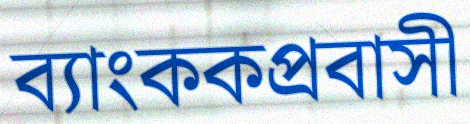
ব্যাংককপ্রবাসী